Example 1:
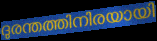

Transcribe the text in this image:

ദുരന്തത്തിനിരയായി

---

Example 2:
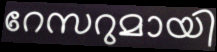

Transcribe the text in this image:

റേസറുമായി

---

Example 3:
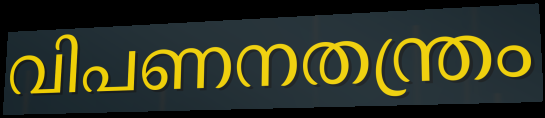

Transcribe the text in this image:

വിപണനതന്ത്രം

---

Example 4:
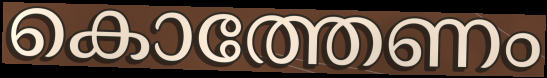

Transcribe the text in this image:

കൊത്തേണം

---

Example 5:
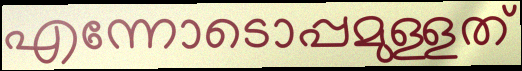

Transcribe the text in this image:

എന്നോടൊപ്പമുള്ളത്